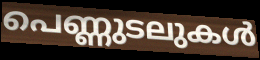
പെണ്ണുടലുകൾ